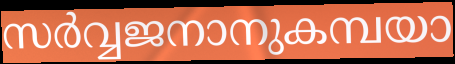
സർവ്വജനാനുകമ്പയാ